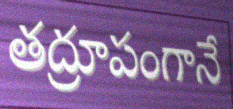
తద్రూపంగానే